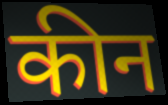
कीन